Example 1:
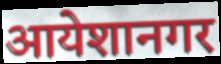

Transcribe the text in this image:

आयेशानगर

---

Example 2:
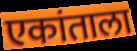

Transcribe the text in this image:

एकांताला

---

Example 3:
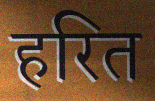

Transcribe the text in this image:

हरित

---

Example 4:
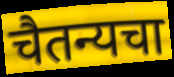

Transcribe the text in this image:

चैतन्यचा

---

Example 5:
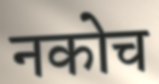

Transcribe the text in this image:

नकोच